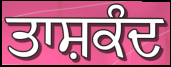
ਤਾਸ਼ਕੰਦ